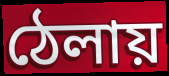
ঠেলায়